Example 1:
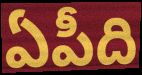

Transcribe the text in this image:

ఏపీది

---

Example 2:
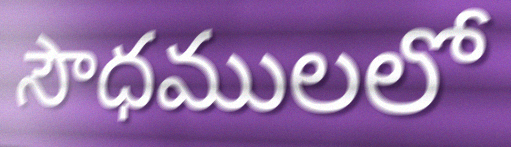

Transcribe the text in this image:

సౌధములలో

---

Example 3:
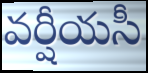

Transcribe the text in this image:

వర్షీయసీ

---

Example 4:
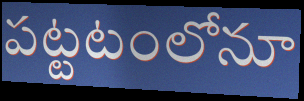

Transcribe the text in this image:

పట్టటంలోనూ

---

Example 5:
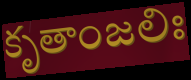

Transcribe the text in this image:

కృతాంజలిః